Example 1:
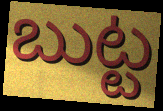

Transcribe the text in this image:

బుట్ట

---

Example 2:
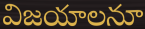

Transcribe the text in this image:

విజయాలనూ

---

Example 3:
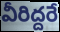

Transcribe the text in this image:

వీరిద్దరే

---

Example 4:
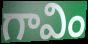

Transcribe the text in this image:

గావిం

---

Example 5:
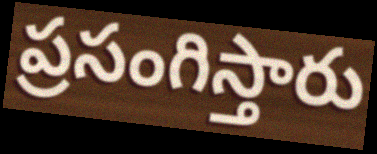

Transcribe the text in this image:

ప్రసంగిస్తారు